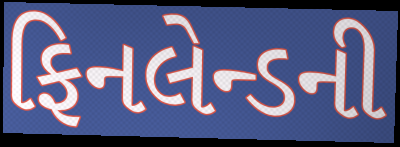
ફિનલેન્ડની